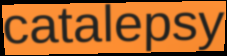
catalepsy